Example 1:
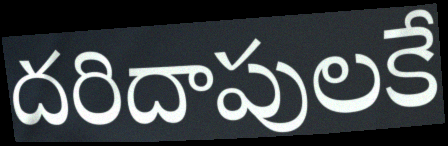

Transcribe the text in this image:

దరిదాపులకే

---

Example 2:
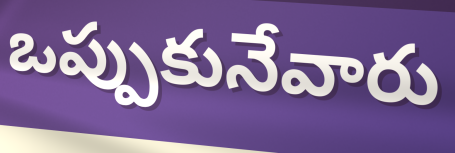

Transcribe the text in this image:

ఒప్పుకునేవారు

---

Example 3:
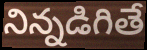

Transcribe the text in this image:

నిన్నడిగితే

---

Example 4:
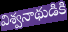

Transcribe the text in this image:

విశ్వనాథుడికి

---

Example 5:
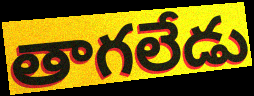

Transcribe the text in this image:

తాగలేడు